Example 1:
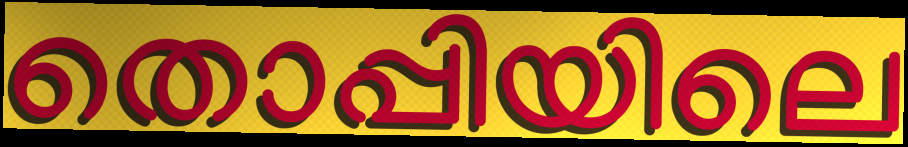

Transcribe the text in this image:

തൊപ്പിയിലെ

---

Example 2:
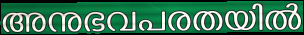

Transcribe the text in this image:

അനുഭവപരതയിൽ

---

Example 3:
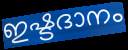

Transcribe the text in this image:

ഇഷ്ടദാനം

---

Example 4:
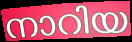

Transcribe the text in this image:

നാറിയ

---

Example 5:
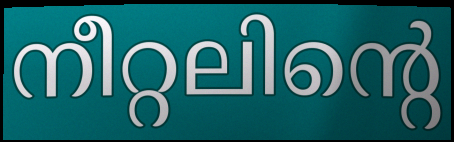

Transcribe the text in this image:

നീറ്റലിന്റെ